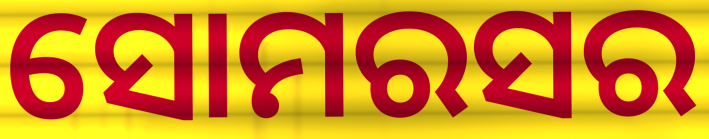
ସୋମରସର